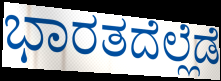
ಭಾರತದೆಲ್ಲೆಡೆ